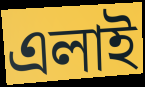
এলাই